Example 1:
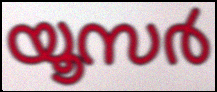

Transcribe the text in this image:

യൂസർ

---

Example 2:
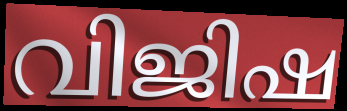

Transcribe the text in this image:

വിജിഷ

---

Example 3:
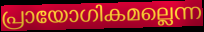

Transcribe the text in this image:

പ്രായോഗികമല്ലെന്ന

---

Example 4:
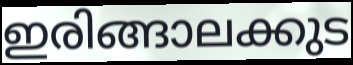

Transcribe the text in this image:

ഇരിങ്ങാലക്കുട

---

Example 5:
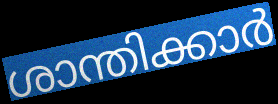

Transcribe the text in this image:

ശാന്തിക്കാർ